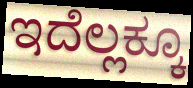
ಇದೆಲ್ಲಕ್ಕೂ